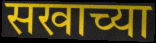
सखाच्या